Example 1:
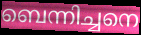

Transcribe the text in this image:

ബെന്നിച്ചനെ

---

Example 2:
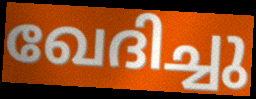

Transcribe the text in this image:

ഖേദിച്ചു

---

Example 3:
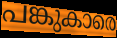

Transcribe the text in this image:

പങ്കുകാരെ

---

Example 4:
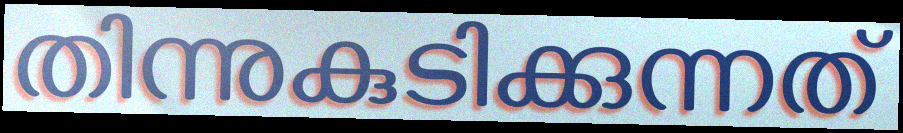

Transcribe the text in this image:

തിന്നുകുടിക്കുന്നത്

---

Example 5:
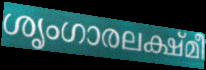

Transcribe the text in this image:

ശൃംഗാരലക്ഷ്മീ